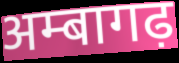
अम्बागढ़